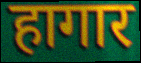
हागार